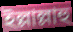
ইল্লাল্লাহু